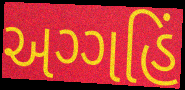
અગ્ગહિં